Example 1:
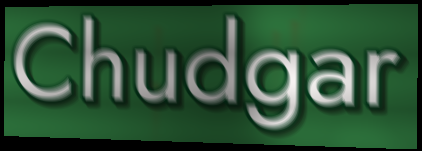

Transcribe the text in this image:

Chudgar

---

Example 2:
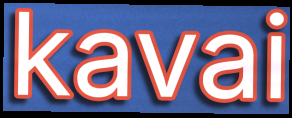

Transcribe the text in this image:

kavai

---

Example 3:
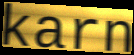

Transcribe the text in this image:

karn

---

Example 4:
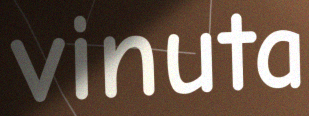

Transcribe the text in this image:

vinuta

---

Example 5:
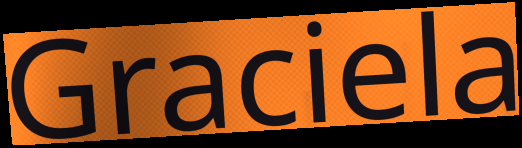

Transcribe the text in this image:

Graciela